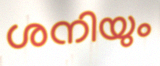
ശനിയും